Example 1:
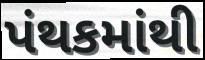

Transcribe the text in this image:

પંથકમાંથી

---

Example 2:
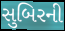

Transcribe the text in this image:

સુબિરની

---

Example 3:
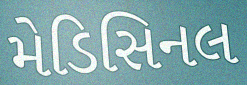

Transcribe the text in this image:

મેડિસિનલ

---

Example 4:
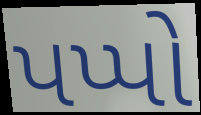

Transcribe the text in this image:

પપ્પો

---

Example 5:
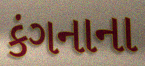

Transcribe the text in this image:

કંગનાના